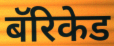
बॅरिकेड